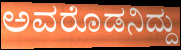
ಅವರೊಡನಿದ್ದು